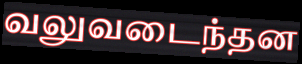
வலுவடைந்தன